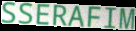
SSERAFIM